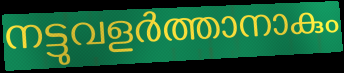
നട്ടുവളർത്താനാകും